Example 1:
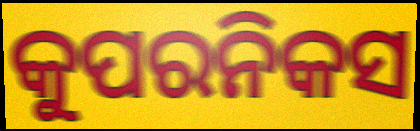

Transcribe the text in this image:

କୁପରନିକସ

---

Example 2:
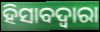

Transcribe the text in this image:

ହିସାବଦ୍ଵାରା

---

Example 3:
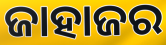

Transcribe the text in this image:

ଜାହାଜର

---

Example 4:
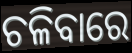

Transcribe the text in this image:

ଚଳିବାରେ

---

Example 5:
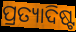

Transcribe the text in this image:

ପ୍ରତ୍ୟାଦିଷ୍ଟ